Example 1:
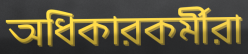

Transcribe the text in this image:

অধিকারকর্মীরা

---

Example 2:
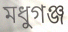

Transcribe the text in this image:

মধুগঞ্জ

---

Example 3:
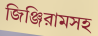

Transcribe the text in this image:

জিঞ্জিরামসহ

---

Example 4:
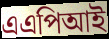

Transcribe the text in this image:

এএপিআই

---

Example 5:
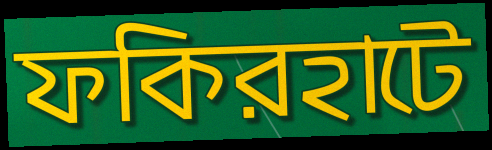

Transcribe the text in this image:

ফকিরহাটে